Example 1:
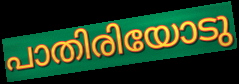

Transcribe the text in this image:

പാതിരിയോടു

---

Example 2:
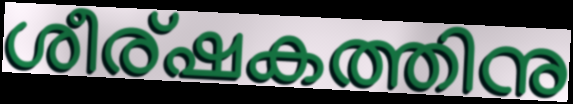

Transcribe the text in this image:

ശീര്ഷകത്തിനു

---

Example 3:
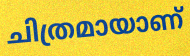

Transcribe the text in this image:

ചിത്രമായാണ്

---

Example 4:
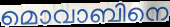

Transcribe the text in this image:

മൊവാബിനെ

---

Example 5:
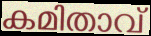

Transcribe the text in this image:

കമിതാവ്